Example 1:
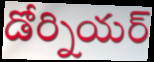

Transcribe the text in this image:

డోర్నియర్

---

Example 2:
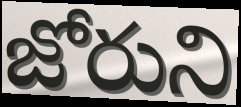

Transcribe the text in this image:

జోరుని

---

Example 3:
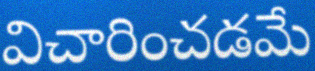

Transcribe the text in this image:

విచారించడమే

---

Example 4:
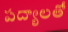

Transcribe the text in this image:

పద్యాలతో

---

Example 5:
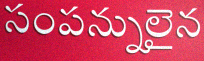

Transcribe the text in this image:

సంపన్నులైన